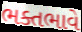
ભક્તભાવે